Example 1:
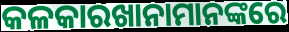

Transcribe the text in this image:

କଳକାରଖାନାମାନଙ୍କରେ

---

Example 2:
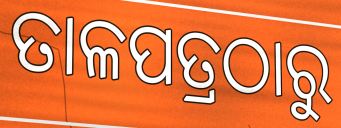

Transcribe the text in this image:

ତାଳପତ୍ରଠାରୁ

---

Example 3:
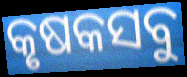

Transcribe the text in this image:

କୃଷକସବୁ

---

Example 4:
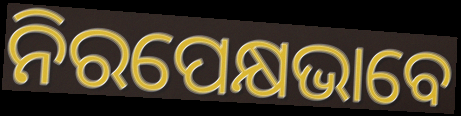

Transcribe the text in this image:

ନିରପେକ୍ଷଭାବେ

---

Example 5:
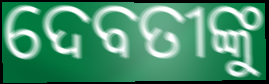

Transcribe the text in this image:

ଦେବତୀଙ୍କୁ